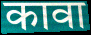
कावा